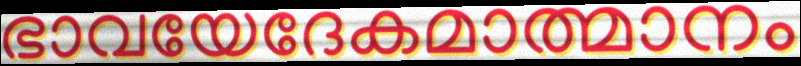
ഭാവയേദേകമാത്മാനം